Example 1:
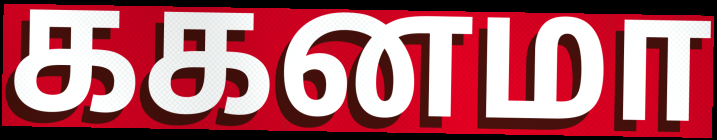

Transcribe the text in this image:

ககனமா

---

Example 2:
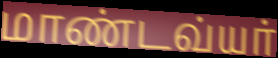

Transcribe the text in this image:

மாண்டவ்யர்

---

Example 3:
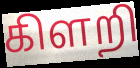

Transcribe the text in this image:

கிளறி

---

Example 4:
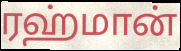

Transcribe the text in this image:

ரஹ்மான்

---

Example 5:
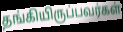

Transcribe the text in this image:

தங்கியிருப்பவர்கள்